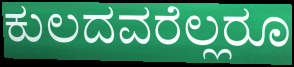
ಕುಲದವರೆಲ್ಲರೂ